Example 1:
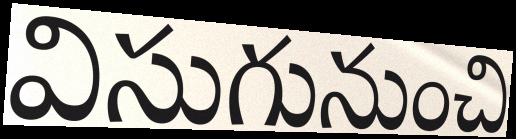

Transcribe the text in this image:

విసుగునుంచి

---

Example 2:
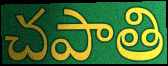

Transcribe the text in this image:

చపాతి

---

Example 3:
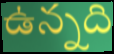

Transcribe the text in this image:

ఉన్నది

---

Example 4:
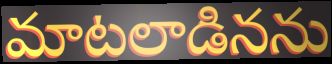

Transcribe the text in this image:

మాటలాడినను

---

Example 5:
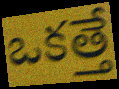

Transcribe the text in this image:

ఒకత్తే